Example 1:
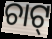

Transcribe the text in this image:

ଚାଟ୍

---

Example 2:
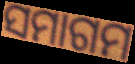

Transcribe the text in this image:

ସମାଗମ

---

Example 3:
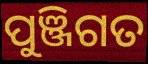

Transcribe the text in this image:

ପୁଞ୍ଜିଗତ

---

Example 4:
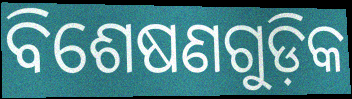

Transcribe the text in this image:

ବିଶେଷଣଗୁଡ଼ିକ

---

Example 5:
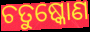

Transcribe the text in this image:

ଚତୁଷ୍କୋଣ